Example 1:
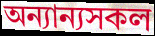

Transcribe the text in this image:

অন্যান্যসকল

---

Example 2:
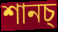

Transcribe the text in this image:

শানচ্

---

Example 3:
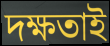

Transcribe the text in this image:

দক্ষতাই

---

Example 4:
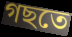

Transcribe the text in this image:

গছতে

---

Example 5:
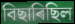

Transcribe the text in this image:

বিছাৰিছিল